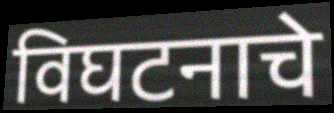
विघटनाचे